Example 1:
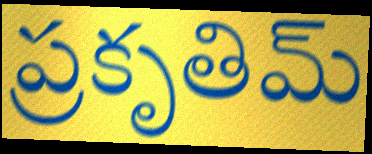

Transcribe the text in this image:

ప్రకృతిమ్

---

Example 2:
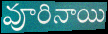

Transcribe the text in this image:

వూరినాయి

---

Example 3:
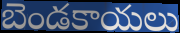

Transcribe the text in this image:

బెండకాయలు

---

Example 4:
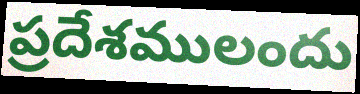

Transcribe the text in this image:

ప్రదేశములందు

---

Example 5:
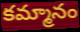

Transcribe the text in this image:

కమ్మానం